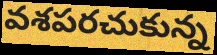
వశపరచుకున్న